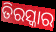
ତିରସ୍କାର